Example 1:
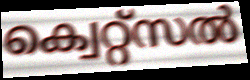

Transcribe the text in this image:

ക്വെറ്റ്സൽ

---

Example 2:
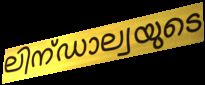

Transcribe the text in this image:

ലിന്ഡാല്വയുടെ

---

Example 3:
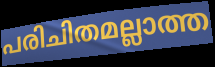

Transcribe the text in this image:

പരിചിതമല്ലാത്ത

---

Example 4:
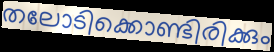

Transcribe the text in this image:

തലോടിക്കൊണ്ടിരിക്കും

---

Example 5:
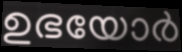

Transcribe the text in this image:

ഉഭയോർ